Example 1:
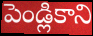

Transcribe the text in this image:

పెండ్లికాని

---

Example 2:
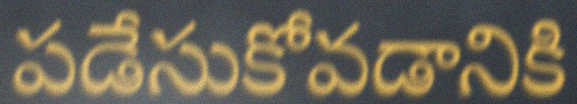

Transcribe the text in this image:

పడేసుకోవడానికి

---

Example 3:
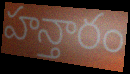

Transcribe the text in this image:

హన్తారం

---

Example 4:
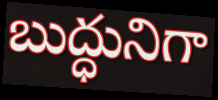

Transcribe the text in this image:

బుద్ధునిగా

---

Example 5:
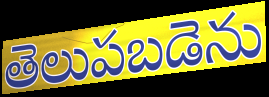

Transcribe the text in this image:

తెలుపబడెను